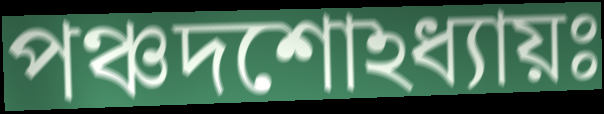
পঞ্চদশোঽধ্যায়ঃ